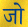
जो